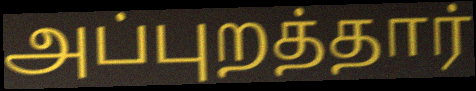
அப்புறத்தார்